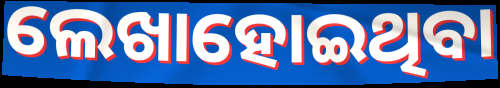
ଲେଖାହୋଇଥିବା